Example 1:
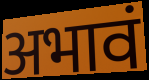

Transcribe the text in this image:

अभावं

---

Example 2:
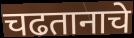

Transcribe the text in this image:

चढतानाचे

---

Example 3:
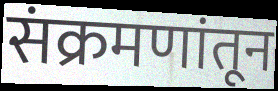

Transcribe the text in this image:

संक्रमणांतून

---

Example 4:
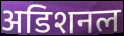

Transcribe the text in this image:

अडिशनल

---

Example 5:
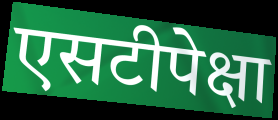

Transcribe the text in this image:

एसटीपेक्षा